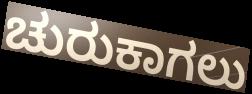
ಚುರುಕಾಗಲು